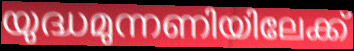
യുദ്ധമുന്നണിയിലേക്ക്